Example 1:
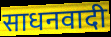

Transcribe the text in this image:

साधनवादी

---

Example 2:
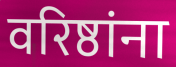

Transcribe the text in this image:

वरिष्ठांना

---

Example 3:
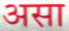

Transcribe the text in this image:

असा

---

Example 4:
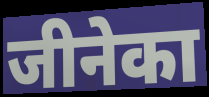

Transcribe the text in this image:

जीनेका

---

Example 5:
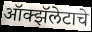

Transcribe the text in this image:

ऑक्झॅलेटाचे